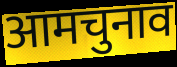
आमचुनाव